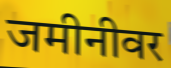
जमीनीवर